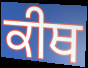
ਕੀਥ